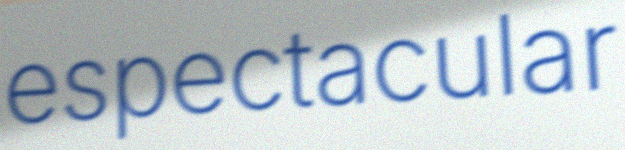
espectacular